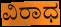
ವಿರಾಧ